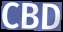
CBD